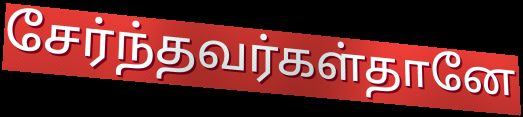
சேர்ந்தவர்கள்தானே